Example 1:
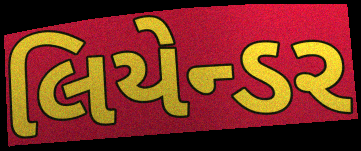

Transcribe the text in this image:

લિયેન્ડર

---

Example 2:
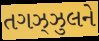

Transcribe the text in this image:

તગઝ્ઝુલને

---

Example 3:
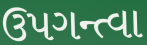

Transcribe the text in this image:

ઉપગન્ત્વા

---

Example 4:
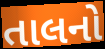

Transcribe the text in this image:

તાલનો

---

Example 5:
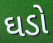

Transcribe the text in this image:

ઘડો